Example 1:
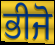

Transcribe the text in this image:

ਭੀਜੋ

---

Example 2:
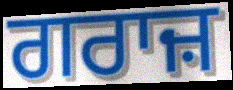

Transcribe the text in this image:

ਗਰਾਜ਼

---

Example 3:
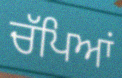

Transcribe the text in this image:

ਚੱਪਿਆਂ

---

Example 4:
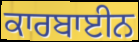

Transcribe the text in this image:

ਕਾਰਬਾਈਨ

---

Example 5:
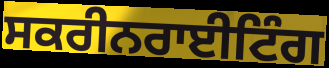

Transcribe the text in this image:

ਸਕਰੀਨਰਾਈਟਿੰਗ